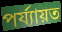
পৰ্য্যায়ত